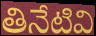
తినేటివి